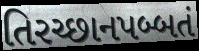
તિરચ્છાનપબ્બતં